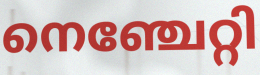
നെഞ്ചേറ്റി